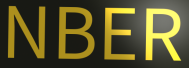
NBER